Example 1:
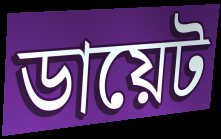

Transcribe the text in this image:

ডায়েট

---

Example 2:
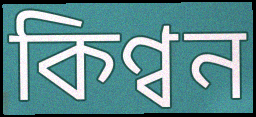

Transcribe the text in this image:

কিণ্বন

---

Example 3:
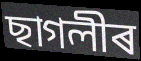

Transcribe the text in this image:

ছাগলীৰ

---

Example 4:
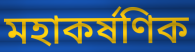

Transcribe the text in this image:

মহাকৰ্ষণিক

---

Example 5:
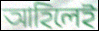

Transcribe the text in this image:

আহিলেই